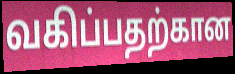
வகிப்பதற்கான